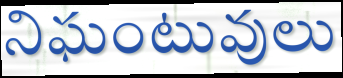
నిఘంటువులు